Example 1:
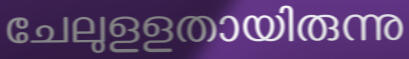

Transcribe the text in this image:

ചേലുളളതായിരുന്നു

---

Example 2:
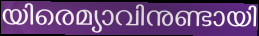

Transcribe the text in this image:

യിരെമ്യാവിനുണ്ടായി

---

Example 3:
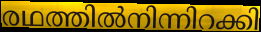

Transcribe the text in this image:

രഥത്തിൽനിന്നിറക്കി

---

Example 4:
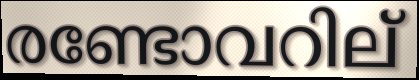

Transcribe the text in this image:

രണ്ടോവറില്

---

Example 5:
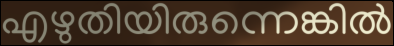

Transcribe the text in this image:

എഴുതിയിരുന്നെങ്കിൽ